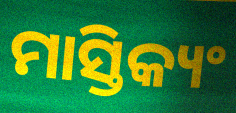
ମାସ୍ତିକ୍ୟଂ